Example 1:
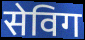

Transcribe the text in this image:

सेविग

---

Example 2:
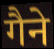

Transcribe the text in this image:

गैने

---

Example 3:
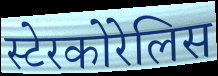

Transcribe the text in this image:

स्टेरकोरेलिस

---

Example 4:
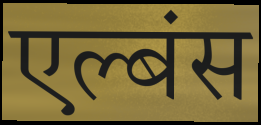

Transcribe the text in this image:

एल्बंस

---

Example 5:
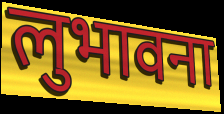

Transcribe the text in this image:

लुभावना